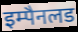
इम्पैनलड